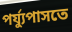
পর্য্যুপাসতে